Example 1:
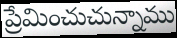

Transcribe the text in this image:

ప్రేమించుచున్నాము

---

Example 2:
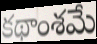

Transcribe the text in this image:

కథాంశమే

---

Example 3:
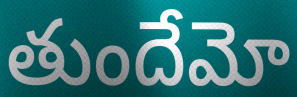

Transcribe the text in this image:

తుందేమో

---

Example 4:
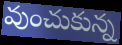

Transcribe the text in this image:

వుంచుకున్న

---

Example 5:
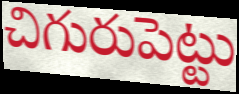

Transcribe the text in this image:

చిగురుపెట్టు